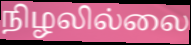
நிழலில்லை